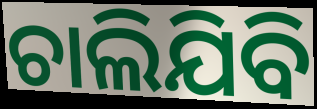
ଚାଲିଯିବି